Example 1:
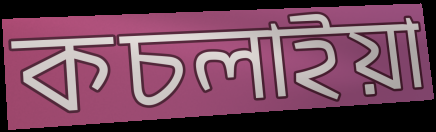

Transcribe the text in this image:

কচলাইয়া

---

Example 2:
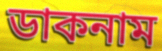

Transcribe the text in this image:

ডাকনাম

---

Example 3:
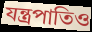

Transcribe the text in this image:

যন্ত্রপাতিও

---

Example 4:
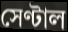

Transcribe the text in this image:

সেণ্টাল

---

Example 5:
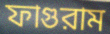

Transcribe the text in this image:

ফাগুরাম